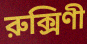
রুক্সিণী